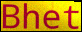
Bhet